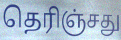
தெரிஞ்சது